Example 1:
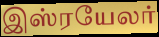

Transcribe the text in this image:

இஸ்ரயேலர்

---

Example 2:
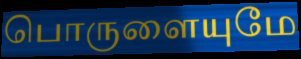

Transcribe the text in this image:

பொருளையுமே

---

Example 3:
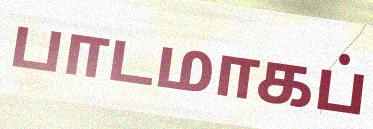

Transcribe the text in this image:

பாடமாகப்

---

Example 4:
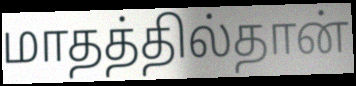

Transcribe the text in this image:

மாதத்தில்தான்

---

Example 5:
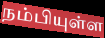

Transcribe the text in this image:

நம்பியுள்ள